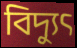
বিদ্যুৎ